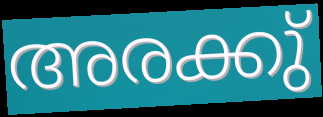
അരക്കു്